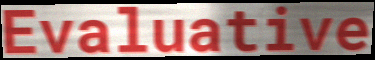
Evaluative